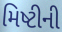
મિષ્ટીની